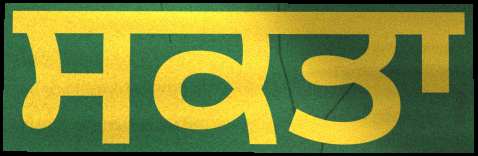
ਸਕਤਾ